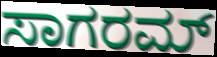
ಸಾಗರಮ್